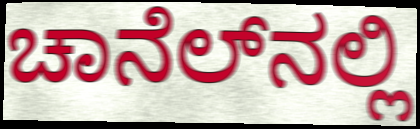
ಚಾನೆಲ್‌ನಲ್ಲಿ